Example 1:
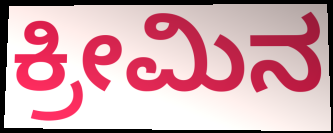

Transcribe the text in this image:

ಕ್ರೀಮಿನ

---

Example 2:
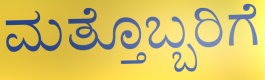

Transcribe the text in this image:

ಮತ್ತೊಬ್ಬರಿಗೆ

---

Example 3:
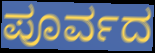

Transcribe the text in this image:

ಪೂರ್ವದ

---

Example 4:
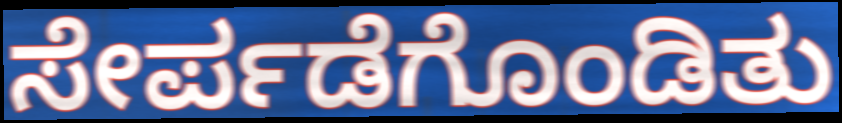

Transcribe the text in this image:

ಸೇರ್ಪಡೆಗೊಂಡಿತು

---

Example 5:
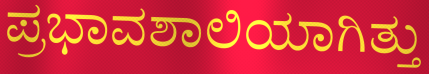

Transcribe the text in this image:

ಪ್ರಭಾವಶಾಲಿಯಾಗಿತ್ತು